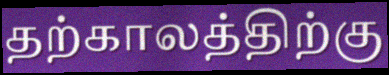
தற்காலத்திற்கு